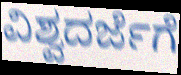
ವಿಶ್ವದರ್ಜೆಗೆ